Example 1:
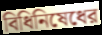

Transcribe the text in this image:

বিধিনিষেধের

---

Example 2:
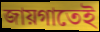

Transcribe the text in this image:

জায়গাতেই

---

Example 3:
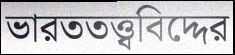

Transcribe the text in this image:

ভারততত্ত্ববিদ্দের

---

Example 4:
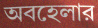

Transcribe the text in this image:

অবহেলার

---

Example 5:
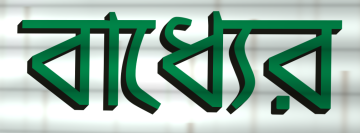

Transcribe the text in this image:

বাধ্যের